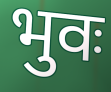
भुवः